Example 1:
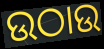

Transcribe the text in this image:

ଉଠାଉ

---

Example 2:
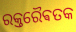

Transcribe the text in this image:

ରକ୍ତରୈଵତକ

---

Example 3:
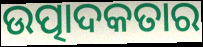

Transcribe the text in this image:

ଉତ୍ପାଦକତାର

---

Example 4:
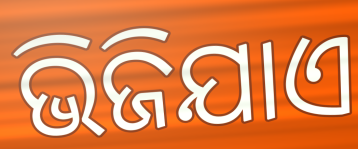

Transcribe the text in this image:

ଭିଜିଯାଏ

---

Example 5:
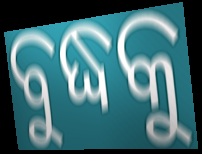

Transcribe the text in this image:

ବୁଦ୍ଧକୁ